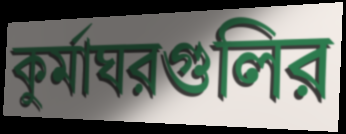
কুর্মাঘরগুলির